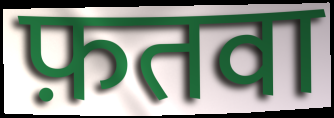
फ़तवा